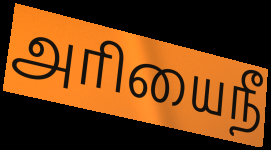
அரியைநீ